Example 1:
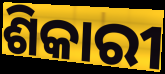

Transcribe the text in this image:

ଶିକାରୀ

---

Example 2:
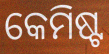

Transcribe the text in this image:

କେମିଷ୍ଟ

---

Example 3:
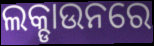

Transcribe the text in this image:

ଲକ୍ଡାଉନରେ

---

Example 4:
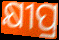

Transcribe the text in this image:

କ୍ଷୀପ୍ର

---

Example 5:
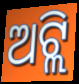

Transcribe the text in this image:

ଅଟ୍ଲି